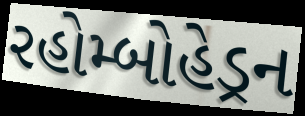
રહોમ્બોહેડ્રન